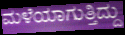
ಮಳೆಯಾಗುತ್ತಿದ್ದು